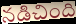
నడిచింది